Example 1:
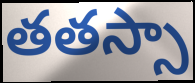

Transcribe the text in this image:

తతస్సా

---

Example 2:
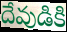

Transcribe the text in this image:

దేవుడికి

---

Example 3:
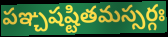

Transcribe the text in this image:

పఞ్చషష్టితమస్సర్గః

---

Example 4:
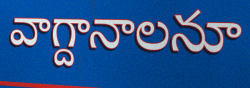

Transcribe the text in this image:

వాగ్దానాలనూ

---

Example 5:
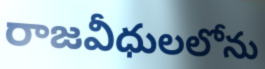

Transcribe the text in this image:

రాజవీధులలోను